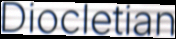
Diocletian